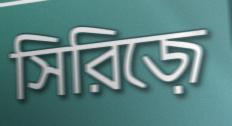
সিরিজ়ে